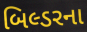
બિલ્ડરના